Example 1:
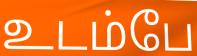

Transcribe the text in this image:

உடம்பே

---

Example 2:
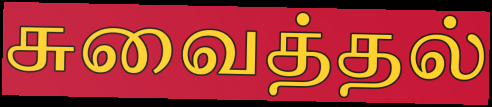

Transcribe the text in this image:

சுவைத்தல்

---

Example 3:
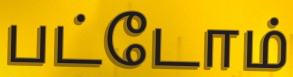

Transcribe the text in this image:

பட்டோம்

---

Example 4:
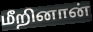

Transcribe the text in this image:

மீறினான்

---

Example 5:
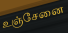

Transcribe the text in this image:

உஞ்சேனை